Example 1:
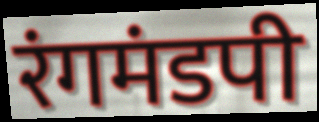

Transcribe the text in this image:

रंगमंडपी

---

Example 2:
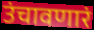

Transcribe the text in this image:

उंचावणारं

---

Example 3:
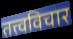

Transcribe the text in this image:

तत्त्वविचार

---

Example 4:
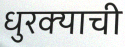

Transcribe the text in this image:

धुरक्याची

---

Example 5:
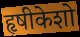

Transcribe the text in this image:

हृषीकेशो